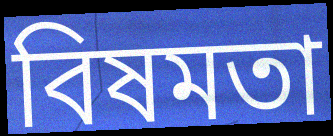
বিষমতা